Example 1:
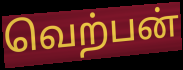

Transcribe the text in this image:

வெற்பன்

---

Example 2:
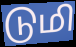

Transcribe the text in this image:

டுமி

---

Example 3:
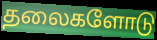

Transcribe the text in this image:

தலைகளோடு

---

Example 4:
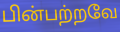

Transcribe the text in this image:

பின்பற்றவே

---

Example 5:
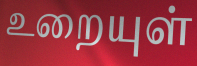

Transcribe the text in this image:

உறையுள்